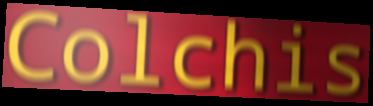
Colchis